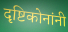
दृष्टिकोनांनी